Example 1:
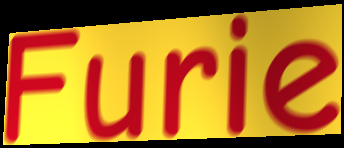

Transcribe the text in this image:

Furie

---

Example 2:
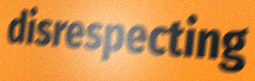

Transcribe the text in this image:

disrespecting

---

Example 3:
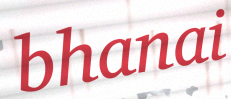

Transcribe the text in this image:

bhanai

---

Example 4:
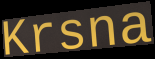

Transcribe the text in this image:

Krsna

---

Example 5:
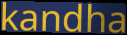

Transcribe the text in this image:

kandha